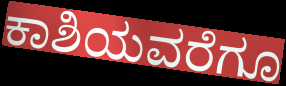
ಕಾಶಿಯವರೆಗೂ